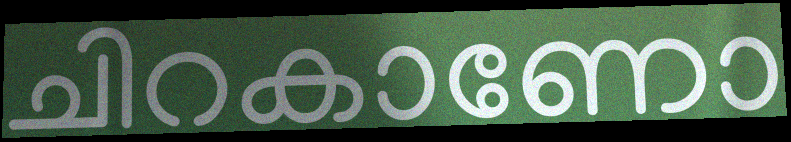
ചിറകാണോ